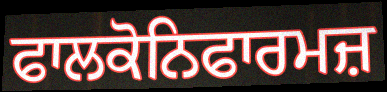
ਫਾਲਕੋਨਿਫਾਰਮਜ਼